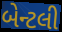
બેન્ટલી